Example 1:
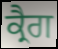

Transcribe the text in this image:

ਕ੍ਰੈਗ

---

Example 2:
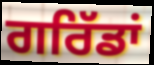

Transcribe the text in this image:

ਗਰਿੱਡਾਂ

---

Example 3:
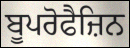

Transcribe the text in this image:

ਬੂਪਰੋਫੈਜ਼ਿਨ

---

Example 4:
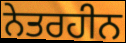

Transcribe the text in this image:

ਨੇਤਰਹੀਨ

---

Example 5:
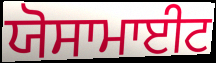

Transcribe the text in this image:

ਯੋਸਾਮਾਈਟ